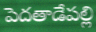
పెదతాడేపల్లి